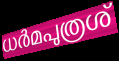
ധർമപുത്രശ്